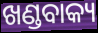
ଖଣ୍ଡବାକ୍ୟ